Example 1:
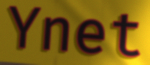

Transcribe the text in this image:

Ynet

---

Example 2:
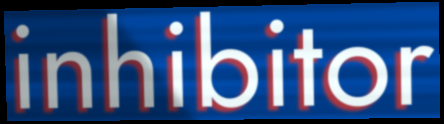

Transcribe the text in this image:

inhibitor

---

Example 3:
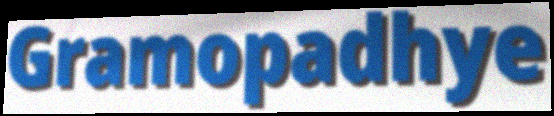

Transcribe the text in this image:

Gramopadhye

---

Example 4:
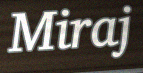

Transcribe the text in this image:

Miraj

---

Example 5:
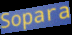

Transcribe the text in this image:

Sopara